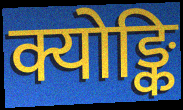
क्योङ्कि